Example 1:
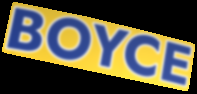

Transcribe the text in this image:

BOYCE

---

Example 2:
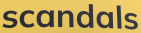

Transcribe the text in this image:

scandals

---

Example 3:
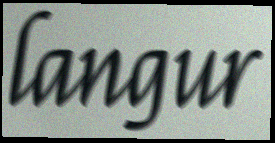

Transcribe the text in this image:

langur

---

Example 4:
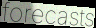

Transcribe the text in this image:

forecasts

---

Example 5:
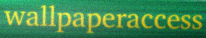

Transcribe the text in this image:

wallpaperaccess